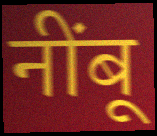
नींबू